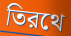
তিরথে